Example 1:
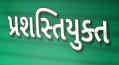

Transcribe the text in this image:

પ્રશસ્તિયુક્ત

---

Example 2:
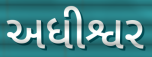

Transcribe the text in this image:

અધીશ્વર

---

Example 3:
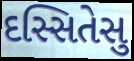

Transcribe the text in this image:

દસ્સિતેસુ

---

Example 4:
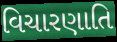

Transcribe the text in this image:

વિચારણાતિ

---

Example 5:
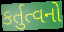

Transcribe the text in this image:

કર્તુત્વનો